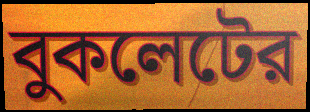
বুকলেটের